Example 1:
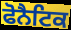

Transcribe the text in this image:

ਫੋਨੈਟਿਕ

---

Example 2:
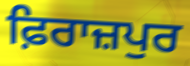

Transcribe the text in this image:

ਫ਼ਿਰਾਜ਼ਪੁਰ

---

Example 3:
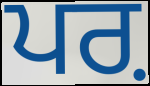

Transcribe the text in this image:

ਪਰ਼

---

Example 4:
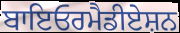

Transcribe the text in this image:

ਬਾਇਓਰਮੈਡੀਏਸ਼ਨ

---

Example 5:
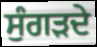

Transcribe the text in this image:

ਸੁੰਗੜਦੇ